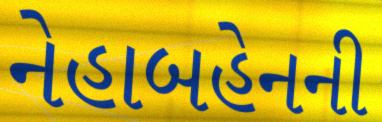
નેહાબહેનની